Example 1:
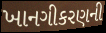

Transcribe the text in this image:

ખાનગીકરણની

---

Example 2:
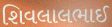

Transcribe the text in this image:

શિવલાલભાઈ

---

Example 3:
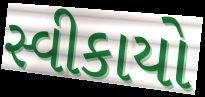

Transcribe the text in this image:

સ્વીકાયો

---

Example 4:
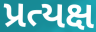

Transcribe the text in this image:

પ્રત્યક્ષ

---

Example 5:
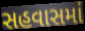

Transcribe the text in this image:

સહવાસમાં